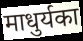
माधुर्यका